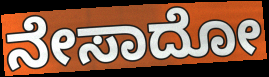
ನೇಸಾದೋ